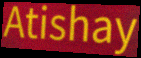
Atishay